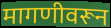
मागणीवरून